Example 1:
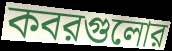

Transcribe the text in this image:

কবরগুলোর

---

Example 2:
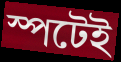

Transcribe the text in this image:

স্পটেই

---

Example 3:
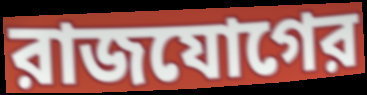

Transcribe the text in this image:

রাজযোগের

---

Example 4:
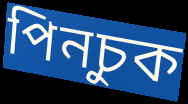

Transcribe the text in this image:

পিনচুক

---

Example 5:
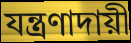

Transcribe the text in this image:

যন্ত্রণাদায়ী